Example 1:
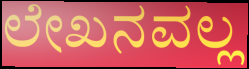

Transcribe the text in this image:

ಲೇಖನವಲ್ಲ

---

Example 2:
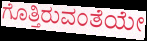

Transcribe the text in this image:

ಗೊತ್ತಿರುವಂತೆಯೇ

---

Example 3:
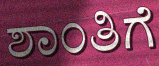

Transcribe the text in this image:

ಶಾಂತಿಗೆ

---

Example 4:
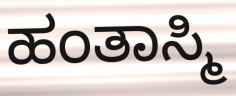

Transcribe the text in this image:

ಹಂತಾಸ್ಮಿ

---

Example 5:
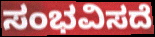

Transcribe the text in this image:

ಸಂಭವಿಸದೆ